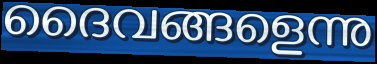
ദൈവങ്ങളെന്നു